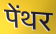
पेंथर